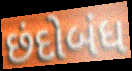
છંદોબંધ